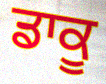
ਡਾਕੂ